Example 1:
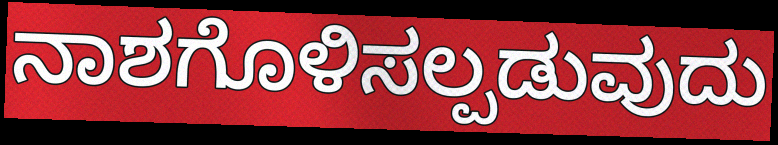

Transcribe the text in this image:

ನಾಶಗೊಳಿಸಲ್ಪಡುವುದು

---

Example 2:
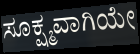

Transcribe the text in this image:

ಸೂಕ್ಷ್ಮವಾಗಿಯೇ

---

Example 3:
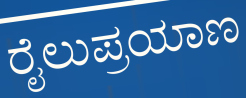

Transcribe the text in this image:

ರೈಲುಪ್ರಯಾಣ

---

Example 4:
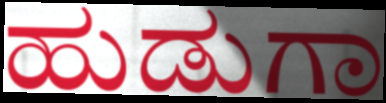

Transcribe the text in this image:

ಹುಡುಗಾ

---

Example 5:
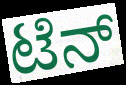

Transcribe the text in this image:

ಟೆನ್